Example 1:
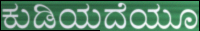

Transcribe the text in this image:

ಕುಡಿಯದೆಯೂ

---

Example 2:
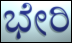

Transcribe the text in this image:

ಭೇರಿ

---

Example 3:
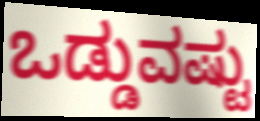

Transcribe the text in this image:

ಒಡ್ಡುವಷ್ಟು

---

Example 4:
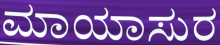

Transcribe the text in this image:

ಮಾಯಾಸುರ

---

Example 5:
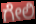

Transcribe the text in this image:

ಗೇಲಿ